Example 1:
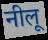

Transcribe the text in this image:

नीलू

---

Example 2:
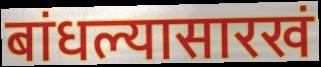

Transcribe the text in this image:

बांधल्यासारखं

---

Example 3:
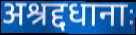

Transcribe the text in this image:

अश्रद्दधानाः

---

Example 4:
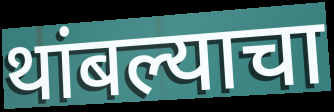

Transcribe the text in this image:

थांबल्याचा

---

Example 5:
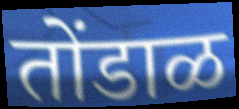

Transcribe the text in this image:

तोंडाळ